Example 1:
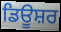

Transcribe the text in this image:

ਡਿਊਸ਼ਰ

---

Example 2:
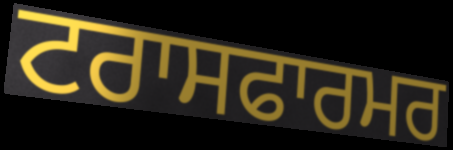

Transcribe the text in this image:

ਟਰਾਸਫਾਰਮਰ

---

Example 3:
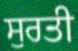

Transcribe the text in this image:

ਸੁਰਤੀ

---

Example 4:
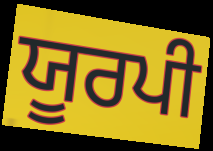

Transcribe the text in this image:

ਯੂਰਪੀ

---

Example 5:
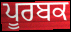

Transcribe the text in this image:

ਪੂਰਬਕ